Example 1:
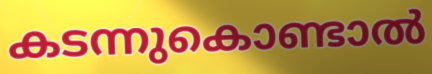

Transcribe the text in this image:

കടന്നുകൊണ്ടാൽ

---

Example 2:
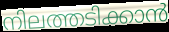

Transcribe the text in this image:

നിലത്തടിക്കാൻ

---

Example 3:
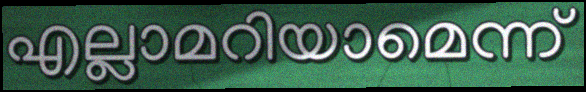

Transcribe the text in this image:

എല്ലാമറിയാമെന്ന്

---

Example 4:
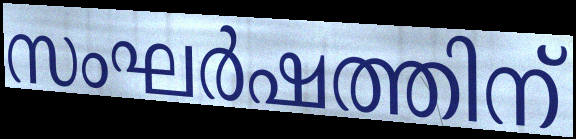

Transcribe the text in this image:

സംഘർഷത്തിന്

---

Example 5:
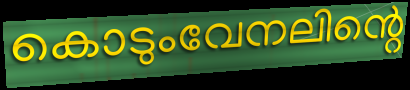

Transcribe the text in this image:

കൊടുംവേനലിന്റെ